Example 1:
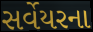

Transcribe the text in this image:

સર્વેયરના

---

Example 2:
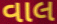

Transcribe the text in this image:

વાલ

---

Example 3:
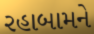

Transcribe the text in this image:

રહાબામને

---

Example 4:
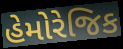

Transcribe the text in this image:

હેમોરેજિક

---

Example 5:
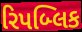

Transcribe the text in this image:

રિપબ્લિક